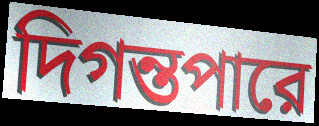
দিগন্তপারে